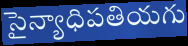
సైన్యాధిపతియగు